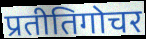
प्रतीतिगोचर